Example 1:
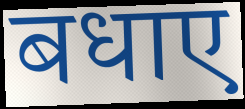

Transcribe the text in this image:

बधाए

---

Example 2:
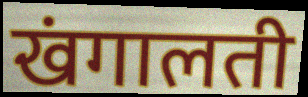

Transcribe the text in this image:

खंगालती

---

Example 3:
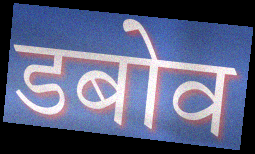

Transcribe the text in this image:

डबोव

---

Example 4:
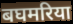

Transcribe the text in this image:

बघमरिया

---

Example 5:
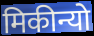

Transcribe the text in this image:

मिकीन्यो